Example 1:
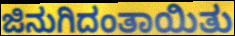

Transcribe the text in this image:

ಜಿನುಗಿದಂತಾಯಿತು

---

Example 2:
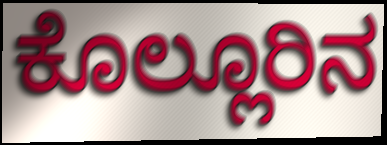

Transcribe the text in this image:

ಕೊಲ್ಲೂರಿನ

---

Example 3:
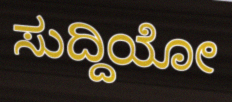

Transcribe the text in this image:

ಸುದ್ದಿಯೋ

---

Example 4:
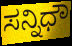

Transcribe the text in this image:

ಸನ್ನಿಧೌ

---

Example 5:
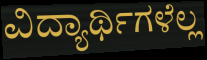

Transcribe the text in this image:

ವಿದ್ಯಾರ್ಥಿಗಳೆಲ್ಲ